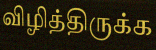
விழித்திருக்க